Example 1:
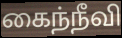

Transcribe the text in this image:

கைந்நீவி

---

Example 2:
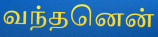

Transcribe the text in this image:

வந்தனென்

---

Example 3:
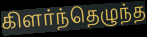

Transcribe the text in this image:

கிளர்ந்தெழுந்த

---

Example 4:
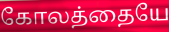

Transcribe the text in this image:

கோலத்தையே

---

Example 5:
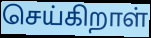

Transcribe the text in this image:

செய்கிறாள்